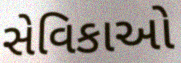
સેવિકાઓ